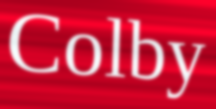
Colby